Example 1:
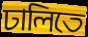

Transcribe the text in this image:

ঢালিতে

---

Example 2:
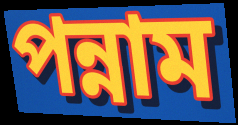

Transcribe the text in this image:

পন্নাম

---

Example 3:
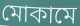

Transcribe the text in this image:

মোকামে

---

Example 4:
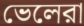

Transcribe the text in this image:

ভেলেরা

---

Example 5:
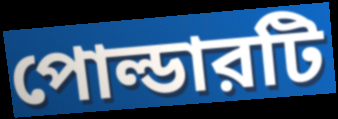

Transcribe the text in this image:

পোল্ডারটি